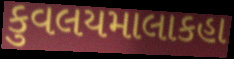
કુવલયમાલાકહા